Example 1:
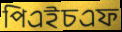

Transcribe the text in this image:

পিএইচএফ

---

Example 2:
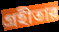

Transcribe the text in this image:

গ্রহীতার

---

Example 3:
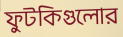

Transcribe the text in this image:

ফুটকিগুলোর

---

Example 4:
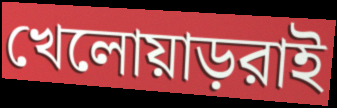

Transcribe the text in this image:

খেলোয়াড়রাই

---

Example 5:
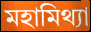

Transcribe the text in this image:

মহামিথ্যা